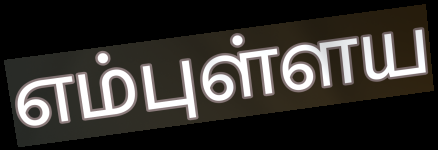
எம்புள்ளய